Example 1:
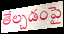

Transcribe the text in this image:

తేల్చడంపై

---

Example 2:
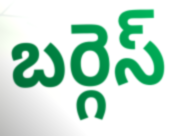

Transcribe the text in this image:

బర్గెస్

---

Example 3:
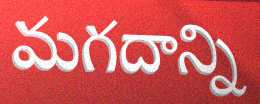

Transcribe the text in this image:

మగదాన్ని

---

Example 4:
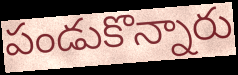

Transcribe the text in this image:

పండుకొన్నారు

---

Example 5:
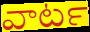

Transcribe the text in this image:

వాటర్‍